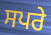
ਸਪਰੇ